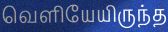
வெளியேயிருந்த